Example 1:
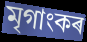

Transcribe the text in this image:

মৃগাংকৰ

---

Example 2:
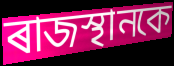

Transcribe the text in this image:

ৰাজস্থানকে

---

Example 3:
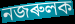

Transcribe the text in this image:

নজৰুলক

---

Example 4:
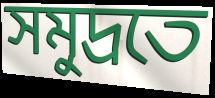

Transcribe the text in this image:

সমুদ্ৰতে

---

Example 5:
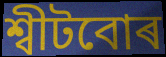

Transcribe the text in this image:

শ্বীটবোৰ